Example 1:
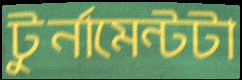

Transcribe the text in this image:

টুর্নামেন্টটা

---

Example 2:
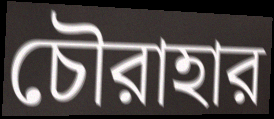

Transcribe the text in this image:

চৌরাহার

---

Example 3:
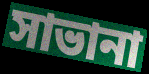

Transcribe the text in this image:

সাভানা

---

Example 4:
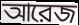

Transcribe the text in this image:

আরেজ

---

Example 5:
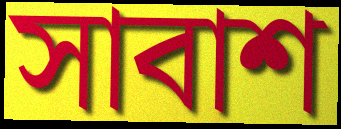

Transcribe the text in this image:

সাবাশ